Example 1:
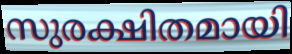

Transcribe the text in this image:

സുരക്ഷിതമായി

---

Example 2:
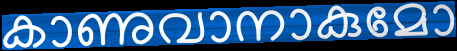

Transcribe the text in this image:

കാണുവാനാകുമോ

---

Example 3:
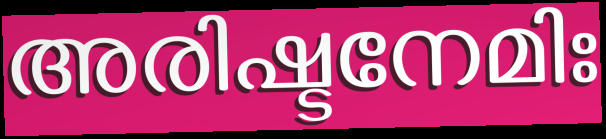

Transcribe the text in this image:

അരിഷ്ടനേമിഃ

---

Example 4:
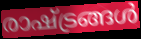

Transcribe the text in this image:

രാഷ്ട്രങ്ങൾ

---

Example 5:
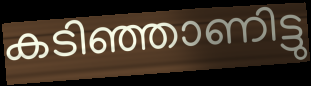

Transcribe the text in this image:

കടിഞ്ഞാണിട്ടു